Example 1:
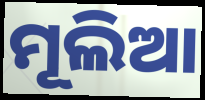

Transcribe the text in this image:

ମୂଲିଆ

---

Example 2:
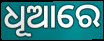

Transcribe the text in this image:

ଧୂଆରେ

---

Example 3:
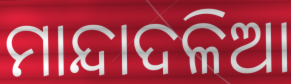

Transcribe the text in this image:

ମାନ୍ଦାଦଳିଆ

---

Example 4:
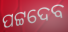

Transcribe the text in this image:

ପଟ୍ଟଦେବ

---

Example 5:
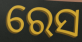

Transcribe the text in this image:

ରେସ